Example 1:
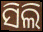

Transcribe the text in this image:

ସିଲି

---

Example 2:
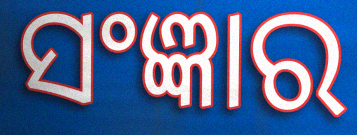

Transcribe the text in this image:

ସଂଜ୍ଞାର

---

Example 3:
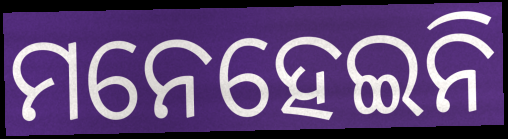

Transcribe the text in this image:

ମନେହେଇନି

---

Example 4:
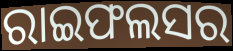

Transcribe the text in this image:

ରାଇଫଲସର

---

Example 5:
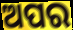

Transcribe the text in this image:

ଅପର